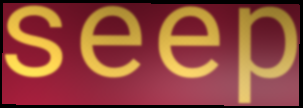
seep